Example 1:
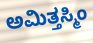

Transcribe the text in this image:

ಅಮಿತ್ತಸ್ಮಿಂ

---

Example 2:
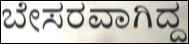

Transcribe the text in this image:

ಬೇಸರವಾಗಿದ್ದ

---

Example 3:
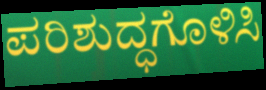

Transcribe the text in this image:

ಪರಿಶುದ್ಧಗೊಳಿಸಿ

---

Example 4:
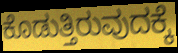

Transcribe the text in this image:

ಕೊಡುತ್ತಿರುವುದಕ್ಕೆ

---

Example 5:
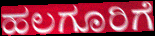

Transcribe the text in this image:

ಹಲಗೂರಿಗೆ